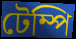
টেম্পি